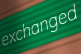
exchanged